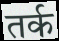
तर्क